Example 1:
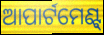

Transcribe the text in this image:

ଆପାର୍ଟମେଣ୍ଟ୍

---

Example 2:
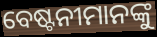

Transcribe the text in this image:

ବେଷ୍ଟନୀମାନଙ୍କୁ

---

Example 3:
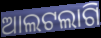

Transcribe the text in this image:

ଆଲଟଲାଗି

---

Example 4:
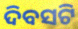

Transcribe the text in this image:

ଦିବସଟି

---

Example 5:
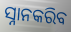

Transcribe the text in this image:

ସ୍ନାନକରିବ